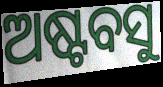
ଅଷ୍ଟବସୁ